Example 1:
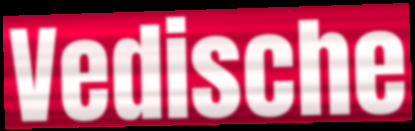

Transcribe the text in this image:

Vedische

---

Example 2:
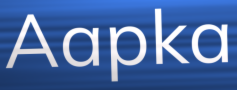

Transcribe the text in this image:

Aapka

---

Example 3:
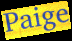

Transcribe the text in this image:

Paige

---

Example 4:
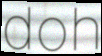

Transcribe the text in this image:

doh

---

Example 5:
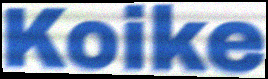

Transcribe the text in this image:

Koike